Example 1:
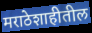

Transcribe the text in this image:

मराठेशाहीतील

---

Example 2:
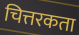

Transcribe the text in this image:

चित्तरकता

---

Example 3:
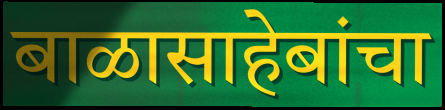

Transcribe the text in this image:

बाळासाहेबांचा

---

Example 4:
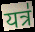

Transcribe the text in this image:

यत्र॑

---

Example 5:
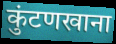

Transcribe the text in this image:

कुंटणखाना